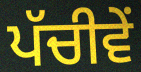
ਪੱਚੀਵੇਂ